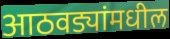
आठवड्यांमधील